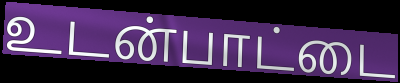
உடன்பாட்டை